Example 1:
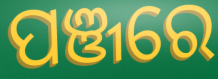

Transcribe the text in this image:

ପଞ୍ଜରେ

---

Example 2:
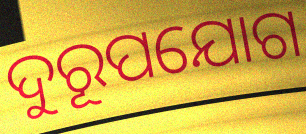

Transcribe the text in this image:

ଦୁରୂପଯୋଗ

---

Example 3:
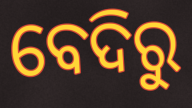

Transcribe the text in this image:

ବେଦିରୁ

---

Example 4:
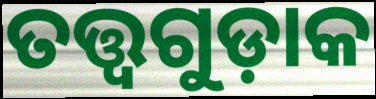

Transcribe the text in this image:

ତତ୍ତ୍ୱଗୁଡ଼ାକ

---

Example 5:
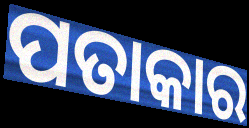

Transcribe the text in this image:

ପତାକାର